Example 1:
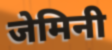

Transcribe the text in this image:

जेमिनी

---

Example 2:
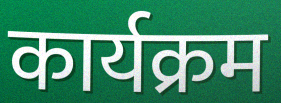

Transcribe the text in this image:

कार्यक्रम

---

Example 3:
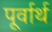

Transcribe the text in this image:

पूर्वार्थ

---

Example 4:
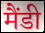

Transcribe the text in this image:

मैंडी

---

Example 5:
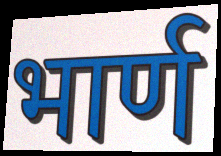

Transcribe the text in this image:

भार्ण